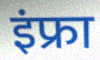
इंफ्रा